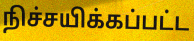
நிச்சயிக்கப்பட்ட